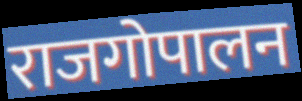
राजगोपालन